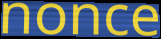
nonce